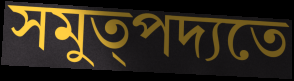
সমুত্পদ্যতে